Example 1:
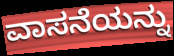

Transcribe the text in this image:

ವಾಸನೆಯನ್ನು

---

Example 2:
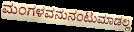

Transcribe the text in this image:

ಮಂಗಳವನುನಂಟುಮಾಡಲ್ಲ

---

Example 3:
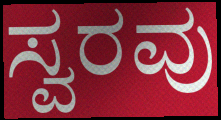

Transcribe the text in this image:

ಸ್ವರವು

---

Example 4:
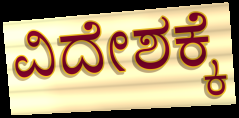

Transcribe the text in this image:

ವಿದೇಶಕ್ಕೆ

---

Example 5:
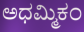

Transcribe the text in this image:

ಅಧಮ್ಮಿಕಂ